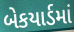
બેકયાર્ડમાં